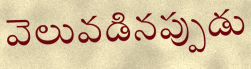
వెలువడినప్పుడు